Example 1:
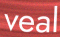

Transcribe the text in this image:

veal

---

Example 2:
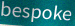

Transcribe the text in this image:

bespoke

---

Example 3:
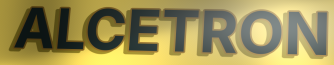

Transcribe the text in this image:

ALCETRON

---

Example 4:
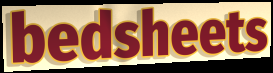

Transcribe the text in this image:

bedsheets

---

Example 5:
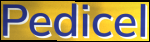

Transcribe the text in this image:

Pedicel